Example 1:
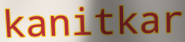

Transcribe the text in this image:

kanitkar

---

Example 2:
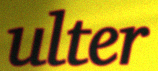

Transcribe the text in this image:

ulter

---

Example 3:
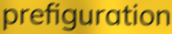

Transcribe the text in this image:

prefiguration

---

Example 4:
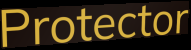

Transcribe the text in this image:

Protector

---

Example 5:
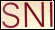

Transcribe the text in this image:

SNl